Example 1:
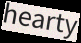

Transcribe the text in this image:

hearty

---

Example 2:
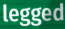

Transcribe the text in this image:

legged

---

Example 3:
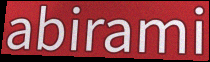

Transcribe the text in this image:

abirami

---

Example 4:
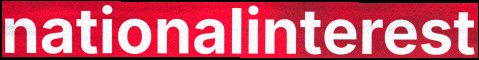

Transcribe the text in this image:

nationalinterest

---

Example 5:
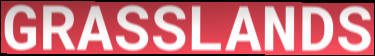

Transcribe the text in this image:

GRASSLANDS